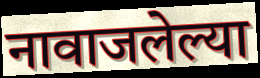
नावाजलेल्या